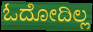
ಓದೋದಿಲ್ಲ